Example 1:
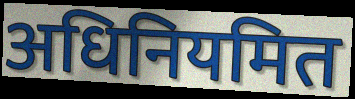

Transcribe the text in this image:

अधिनियमित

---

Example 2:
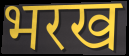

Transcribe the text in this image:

भरख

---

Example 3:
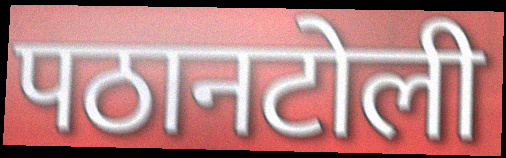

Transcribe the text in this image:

पठानटोली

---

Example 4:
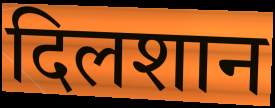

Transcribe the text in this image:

दिलशान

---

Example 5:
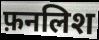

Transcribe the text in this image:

फ़नलिश